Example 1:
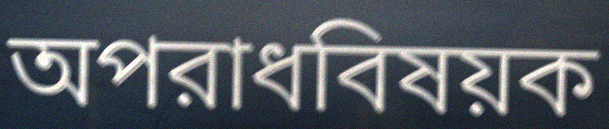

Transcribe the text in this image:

অপরাধবিষয়ক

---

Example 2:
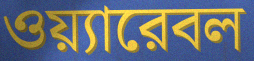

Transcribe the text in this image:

ওয়্যারেবল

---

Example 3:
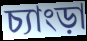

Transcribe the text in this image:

চ্যাংড়া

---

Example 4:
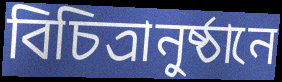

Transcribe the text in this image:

বিচিত্রানুষ্ঠানে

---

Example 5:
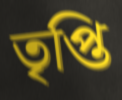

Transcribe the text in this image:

তৃপ্তি